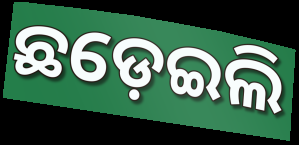
ଛଡ଼େଇଲି